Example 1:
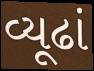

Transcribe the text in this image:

વ્યૂઢાં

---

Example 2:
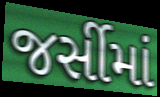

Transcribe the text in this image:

જર્સીમાં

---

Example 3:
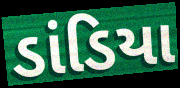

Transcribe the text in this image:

ડાંડિયા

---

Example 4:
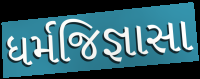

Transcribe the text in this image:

ધર્મજિજ્ઞાસા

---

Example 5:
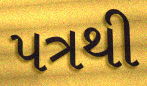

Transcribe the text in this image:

પત્રથી